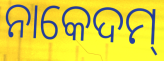
ନାକେଦମ୍